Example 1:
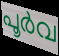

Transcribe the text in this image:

പൂർവ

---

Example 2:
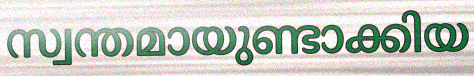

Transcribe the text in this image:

സ്വന്തമായുണ്ടാക്കിയ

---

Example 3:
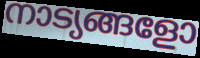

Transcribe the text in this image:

നാട്യങ്ങളോ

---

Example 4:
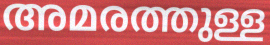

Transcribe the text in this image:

അമരത്തുള്ള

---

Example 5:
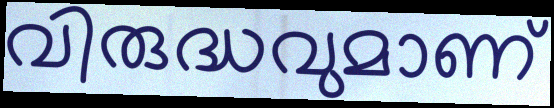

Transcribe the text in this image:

വിരുദ്ധവുമാണ്